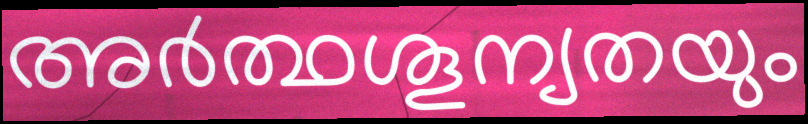
അർത്ഥശൂന്യതയും